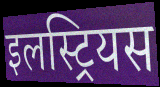
इलस्ट्रियस